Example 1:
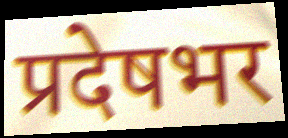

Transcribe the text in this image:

प्रदेषभर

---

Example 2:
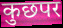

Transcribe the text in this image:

कुछपर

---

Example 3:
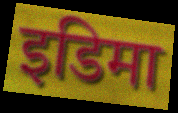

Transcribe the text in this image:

इडिमा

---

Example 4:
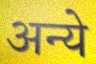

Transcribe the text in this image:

अन्ये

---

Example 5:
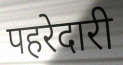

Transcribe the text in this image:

पहरेदारी